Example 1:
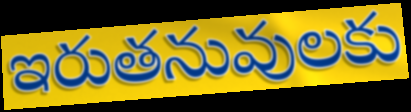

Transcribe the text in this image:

ఇరుతనువులకు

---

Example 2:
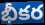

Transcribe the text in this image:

భీకర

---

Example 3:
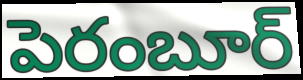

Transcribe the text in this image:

పెరంబూర్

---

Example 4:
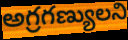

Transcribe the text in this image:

అగ్రగణ్యులని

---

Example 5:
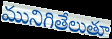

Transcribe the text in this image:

మునిగితేలుతూ